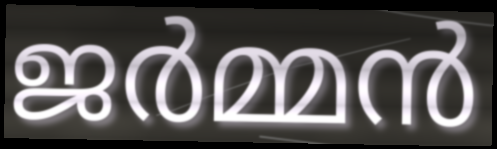
ജർമ്മൻ